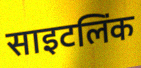
साइटलिंक